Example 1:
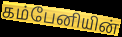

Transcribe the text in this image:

கம்பேனியின்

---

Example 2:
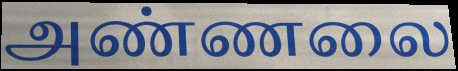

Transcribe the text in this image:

அண்ணலை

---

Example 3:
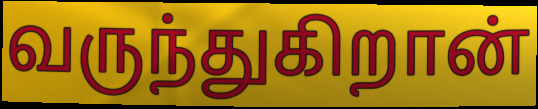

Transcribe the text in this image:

வருந்துகிறான்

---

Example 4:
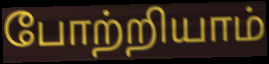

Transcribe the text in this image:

போற்றியாம்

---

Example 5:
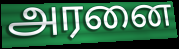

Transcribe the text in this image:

அரனை